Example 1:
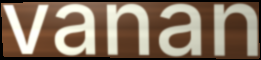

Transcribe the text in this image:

vanan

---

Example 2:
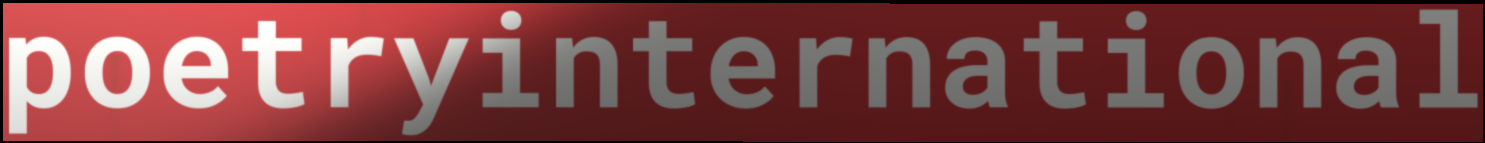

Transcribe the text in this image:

poetryinternational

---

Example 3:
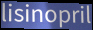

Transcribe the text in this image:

lisinopril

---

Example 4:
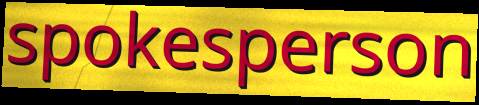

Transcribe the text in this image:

spokesperson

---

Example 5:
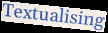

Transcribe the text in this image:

Textualising